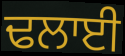
ਢਲਾਈ